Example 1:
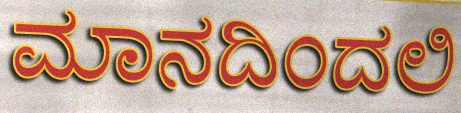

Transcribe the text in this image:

ಮಾನದಿಂದಲಿ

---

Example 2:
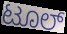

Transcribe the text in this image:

ಟೂಲ್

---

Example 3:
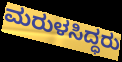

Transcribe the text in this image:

ಮರುಳಸಿದ್ಧರು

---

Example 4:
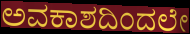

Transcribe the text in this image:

ಅವಕಾಶದಿಂದಲೇ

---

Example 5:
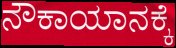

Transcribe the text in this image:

ನೌಕಾಯಾನಕ್ಕೆ